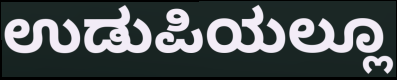
ಉಡುಪಿಯಲ್ಲೂ